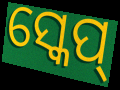
ସ୍କେପ୍